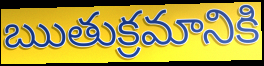
ఋతుక్రమానికి